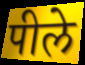
पीले